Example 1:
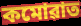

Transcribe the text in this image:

কমোৱাত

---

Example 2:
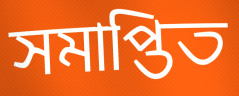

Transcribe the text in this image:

সমাপ্তিত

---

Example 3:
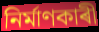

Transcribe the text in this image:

নিৰ্মাণকাৰী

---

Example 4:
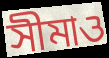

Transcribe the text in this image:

সীমাও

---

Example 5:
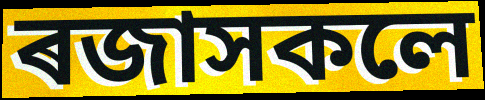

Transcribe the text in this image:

ৰজাসকলে